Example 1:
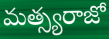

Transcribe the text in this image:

మత్స్యరాజో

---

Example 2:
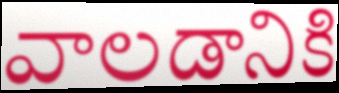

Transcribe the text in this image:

వాలడానికి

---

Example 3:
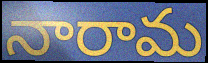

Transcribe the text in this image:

నారామ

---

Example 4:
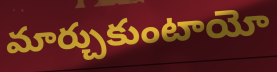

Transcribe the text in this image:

మార్చుకుంటాయో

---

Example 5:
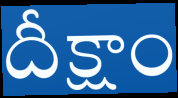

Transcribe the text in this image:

దీక్షాం